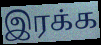
இரக்க